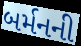
બર્મનની